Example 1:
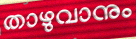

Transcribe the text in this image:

താഴുവാനും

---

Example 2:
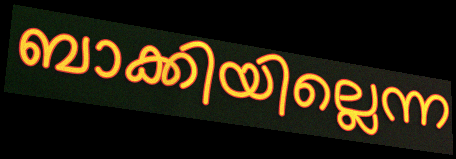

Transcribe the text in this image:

ബാക്കിയില്ലെന്ന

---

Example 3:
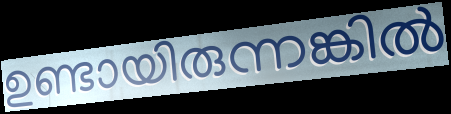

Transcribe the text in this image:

ഉണ്ടായിരുന്നങ്കിൽ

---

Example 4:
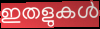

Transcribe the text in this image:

ഇതളുകൾ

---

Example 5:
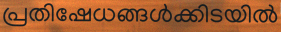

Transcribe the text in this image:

പ്രതിഷേധങ്ങൾക്കിടയിൽ